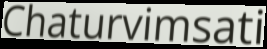
Chaturvimsati